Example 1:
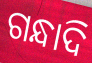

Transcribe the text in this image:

ଗନ୍ଧାଦି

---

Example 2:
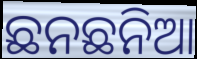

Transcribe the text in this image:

ଛନଛନିଆ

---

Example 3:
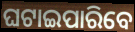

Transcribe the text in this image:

ଘଟାଇପାରିବେ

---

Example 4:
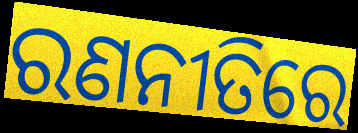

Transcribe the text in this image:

ରଣନୀତିରେ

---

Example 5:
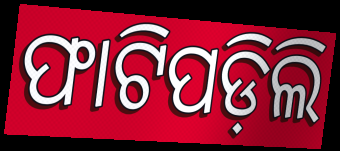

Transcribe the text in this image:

ଫାଟିପଡ଼ିଲି